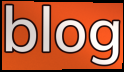
blog